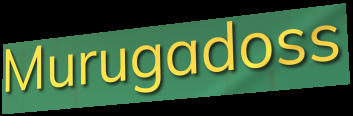
Murugadoss